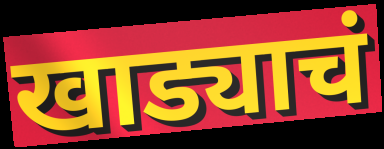
खाड्याचं